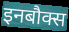
इनबौक्स